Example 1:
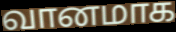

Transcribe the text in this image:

வானமாக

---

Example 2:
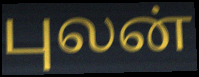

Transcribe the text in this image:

புலன்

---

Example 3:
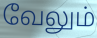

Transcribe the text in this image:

வேலும்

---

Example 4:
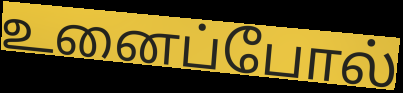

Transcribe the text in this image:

உனைப்போல்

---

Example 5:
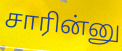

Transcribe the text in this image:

சாரின்னு